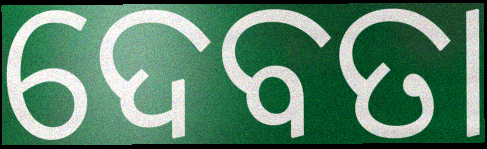
ଦେବତା